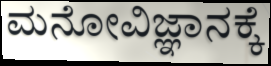
ಮನೋವಿಜ್ಞಾನಕ್ಕೆ